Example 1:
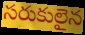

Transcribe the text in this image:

సరుకులైన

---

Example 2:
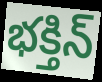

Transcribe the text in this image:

భక్తిన్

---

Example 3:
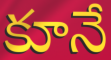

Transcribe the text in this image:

కూనే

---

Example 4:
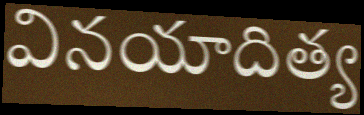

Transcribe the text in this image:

వినయాదిత్య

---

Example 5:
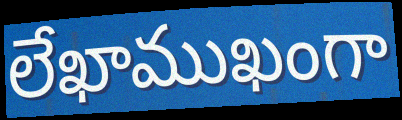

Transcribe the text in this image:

లేఖాముఖంగా